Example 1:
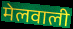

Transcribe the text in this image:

मेलवाली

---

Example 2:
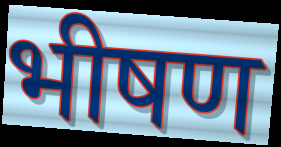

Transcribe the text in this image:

भीषण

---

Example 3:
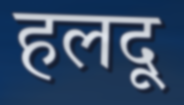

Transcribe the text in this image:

हलदू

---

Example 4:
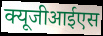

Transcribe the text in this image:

क्यूजीआईएस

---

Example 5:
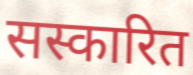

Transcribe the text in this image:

सस्कारित